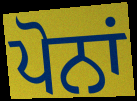
ਪੋਨਾਂ